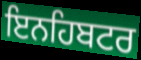
ਇਨਹਿਬਟਰ